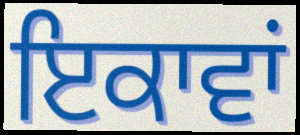
ਇਕਾਵਾਂ